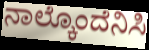
ನಾಲ್ಕೊಂದೆನಿಸಿ